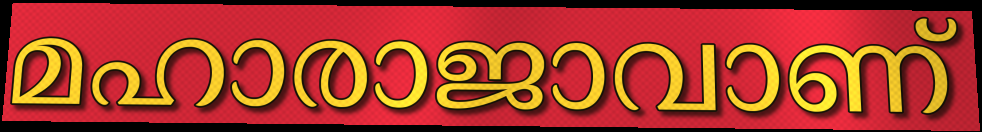
മഹാരാജാവാണ്